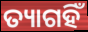
ତ୍ୟାଗହିଁ